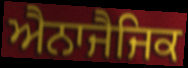
ਐਨਾਜੈਜਿਕ